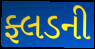
ફ્લડની